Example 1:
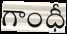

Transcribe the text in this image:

గాంధీ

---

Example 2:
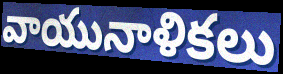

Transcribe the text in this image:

వాయునాళికలు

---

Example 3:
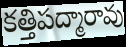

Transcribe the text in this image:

కత్తిపద్మారావు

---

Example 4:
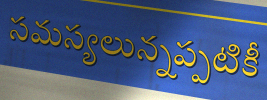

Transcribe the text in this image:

సమస్యలున్నప్పటికీ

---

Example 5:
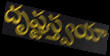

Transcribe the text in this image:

దృష్టస్త్వయా